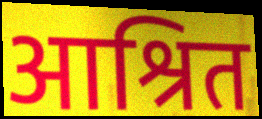
आश्रित